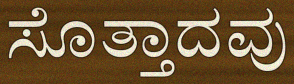
ಸೊತ್ತಾದವು